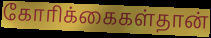
கோரிக்கைகள்தான்